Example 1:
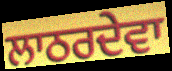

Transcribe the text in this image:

ਲਾਠਰਦੇਵਾ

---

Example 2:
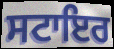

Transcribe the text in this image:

ਸਟਾਇਰ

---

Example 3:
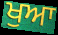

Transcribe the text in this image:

ਖੁਆ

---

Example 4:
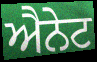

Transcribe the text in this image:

ਐਨੇਟ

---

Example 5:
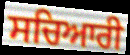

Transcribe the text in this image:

ਸਚਿਆਰੀ